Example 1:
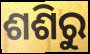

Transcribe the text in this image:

ଶଶିରୁ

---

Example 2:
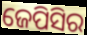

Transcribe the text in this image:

ଜେପିସିର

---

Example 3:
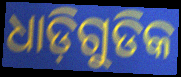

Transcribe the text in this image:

ଧାଡ଼ିଗୁଡିକ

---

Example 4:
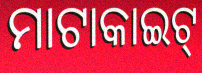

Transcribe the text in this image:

ମାଟାକାଇଟ୍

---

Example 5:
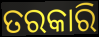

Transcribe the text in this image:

ତରକାରି